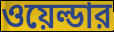
ওয়েল্ডার